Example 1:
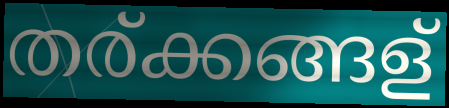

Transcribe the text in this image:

തര്ക്കങ്ങള്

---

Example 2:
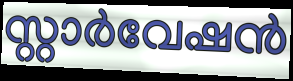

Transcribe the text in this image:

സ്റ്റാർവേഷൻ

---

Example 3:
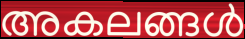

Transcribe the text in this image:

അകലങ്ങൾ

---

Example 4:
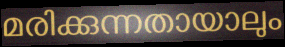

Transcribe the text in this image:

മരിക്കുന്നതായാലും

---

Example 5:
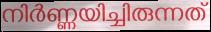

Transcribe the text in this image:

നിർണ്ണയിച്ചിരുന്നത്